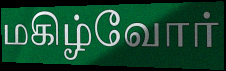
மகிழ்வோர்